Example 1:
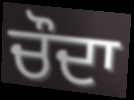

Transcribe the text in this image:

ਚੌਦਾ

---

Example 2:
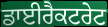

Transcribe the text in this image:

ਡਾਈਰੈਕਟਰੇਟ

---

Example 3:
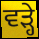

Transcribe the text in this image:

ਵੜ੍ਹੇ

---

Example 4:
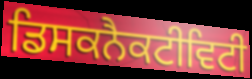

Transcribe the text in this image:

ਡਿਸਕਨੈਕਟੀਵਿਟੀ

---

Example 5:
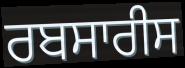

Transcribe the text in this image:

ਰਬਸਾਰੀਸ